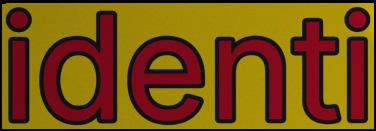
identi